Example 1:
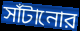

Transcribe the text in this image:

সাঁটানোর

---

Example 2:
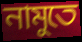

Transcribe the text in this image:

নামুতে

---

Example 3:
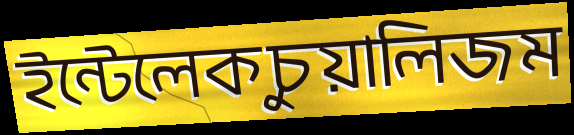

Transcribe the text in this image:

ইন্টেলেকচুয়ালিজম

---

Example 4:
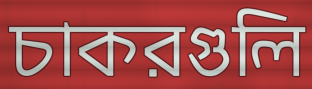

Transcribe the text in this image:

চাকরগুলি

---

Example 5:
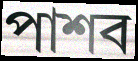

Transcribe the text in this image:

পাশব